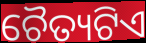
ଚୈତ୍ୟଟିଏ